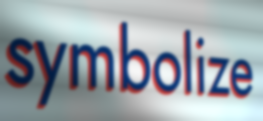
symbolize